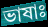
ভাষাঃ